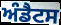
ਅੰਡੈਟਸ